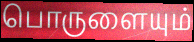
பொருளையும்